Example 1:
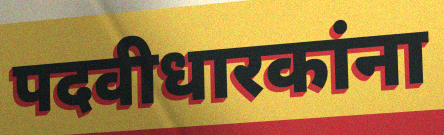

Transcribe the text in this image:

पदवीधारकांना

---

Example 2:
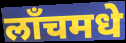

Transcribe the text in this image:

लाँचमधे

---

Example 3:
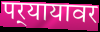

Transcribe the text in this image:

पर्यायावर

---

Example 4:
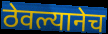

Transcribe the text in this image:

ठेवल्यानेच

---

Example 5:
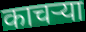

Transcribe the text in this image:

काचऱ्या